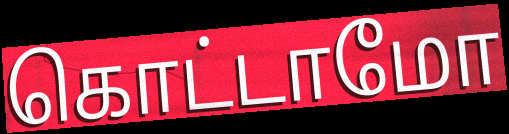
கொட்டாமோ